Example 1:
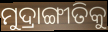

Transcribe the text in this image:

ମୁଦ୍ରାଙ୍ଗୀତିକୁ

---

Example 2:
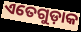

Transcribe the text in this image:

ଏତେଗୁଡ଼ାକ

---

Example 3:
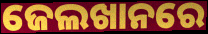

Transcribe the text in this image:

ଜେଲଖାନରେ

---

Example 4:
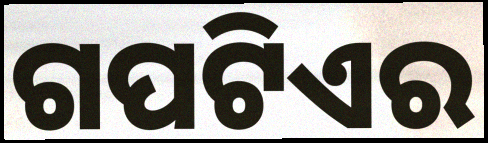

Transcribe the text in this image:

ଗପଟିଏର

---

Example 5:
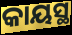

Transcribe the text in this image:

କାୟସ୍ଥ